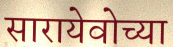
सारायेवोच्या